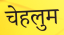
चेहलुम